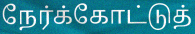
நேர்க்கோட்டுத்